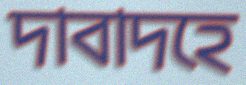
দাবাদহে